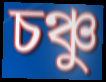
চঞ্চু